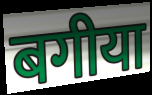
बगीया